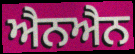
ਐਨਐਨ